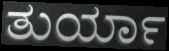
ತುರ್ಯಾ